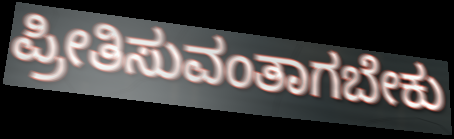
ಪ್ರೀತಿಸುವಂತಾಗಬೇಕು